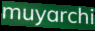
muyarchi